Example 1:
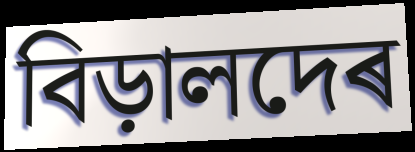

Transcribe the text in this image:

বিড়ালদেৰ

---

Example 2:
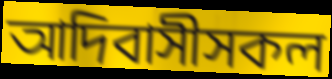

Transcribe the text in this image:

আদিবাসীসকল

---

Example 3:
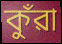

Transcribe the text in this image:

কুঁৱা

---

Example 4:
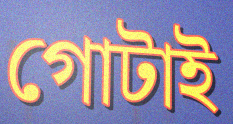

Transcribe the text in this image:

গোটাই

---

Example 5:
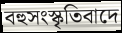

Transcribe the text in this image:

বহুসংস্কৃতিবাদে